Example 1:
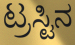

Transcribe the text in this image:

ಟ್ರಸ್ಟಿನ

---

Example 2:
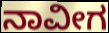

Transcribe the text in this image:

ನಾವೀಗ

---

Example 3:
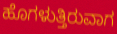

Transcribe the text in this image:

ಹೊಗಳುತ್ತಿರುವಾಗ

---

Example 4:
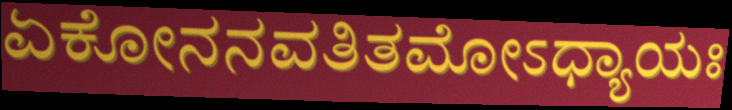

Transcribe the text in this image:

ಏಕೋನನವತಿತಮೋಽಧ್ಯಾಯಃ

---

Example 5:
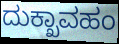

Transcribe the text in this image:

ದುಕ್ಖಾವಹಂ